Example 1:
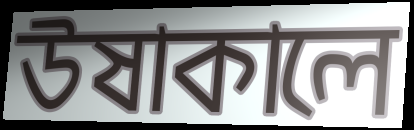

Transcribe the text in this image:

উষাকালে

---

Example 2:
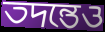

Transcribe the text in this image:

তদন্তেও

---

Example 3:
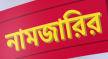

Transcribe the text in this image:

নামজারির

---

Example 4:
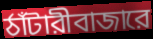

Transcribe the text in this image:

ঠাঁটারীবাজারে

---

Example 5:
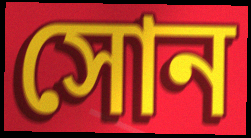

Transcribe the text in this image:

সোন